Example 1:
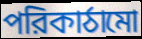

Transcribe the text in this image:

পরিকাঠামো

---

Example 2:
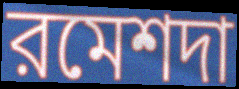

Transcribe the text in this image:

রমেশদা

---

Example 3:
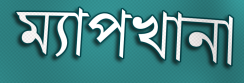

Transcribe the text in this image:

ম্যাপখানা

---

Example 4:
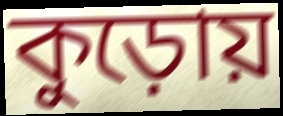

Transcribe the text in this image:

কুড়োয়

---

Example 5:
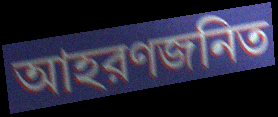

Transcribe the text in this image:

আহরণজনিত